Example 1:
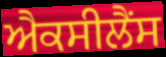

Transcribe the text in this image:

ਐਕਸੀਲੈਂਸ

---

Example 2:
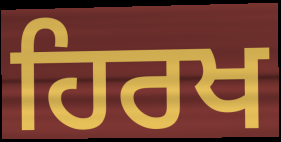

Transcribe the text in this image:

ਹਿਰਖ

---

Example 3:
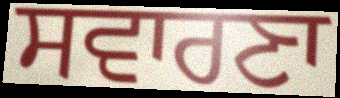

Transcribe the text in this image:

ਸਵਾਰਣਾ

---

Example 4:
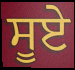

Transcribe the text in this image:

ਸੂਏ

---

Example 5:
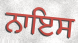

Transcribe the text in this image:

ਨਾਇਸ